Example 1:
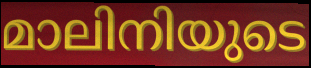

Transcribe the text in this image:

മാലിനിയുടെ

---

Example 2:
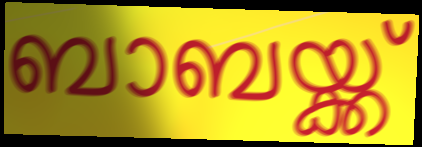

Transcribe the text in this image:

ബാബയ്ക്ക്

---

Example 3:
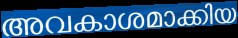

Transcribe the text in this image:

അവകാശമാക്കിയ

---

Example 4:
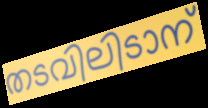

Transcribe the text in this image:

തടവിലിടാന്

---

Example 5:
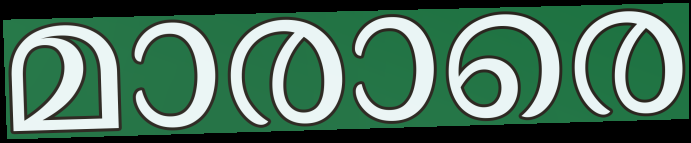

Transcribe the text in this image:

മാരാരെ